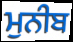
ਮੁਨੀਬ